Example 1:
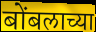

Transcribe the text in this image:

बोंबलाच्या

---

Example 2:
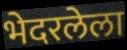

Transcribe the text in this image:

भेदरलेला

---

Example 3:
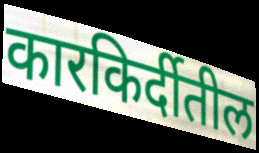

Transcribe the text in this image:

कारकिर्दीतील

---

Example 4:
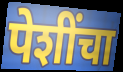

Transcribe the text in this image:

पेशींचा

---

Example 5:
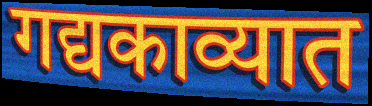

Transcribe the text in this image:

गद्यकाव्यात